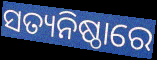
ସତ୍ୟନିଷ୍ଠାରେ